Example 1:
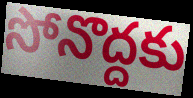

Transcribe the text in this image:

సోనొద్దకు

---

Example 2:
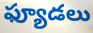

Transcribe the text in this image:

ఫ్యూడలు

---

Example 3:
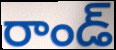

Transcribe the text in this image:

రాండ్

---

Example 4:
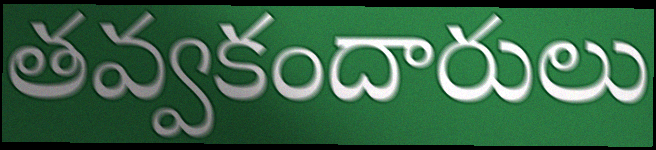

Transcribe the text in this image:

తవ్వకందారులు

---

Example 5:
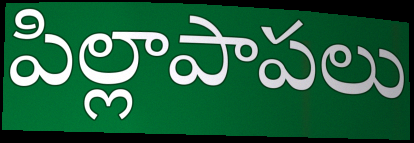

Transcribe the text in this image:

పిల్లాపాపలు